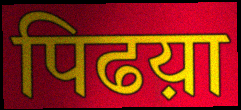
पिढय़ा